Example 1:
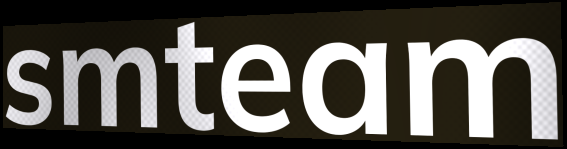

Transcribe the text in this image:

smteam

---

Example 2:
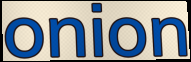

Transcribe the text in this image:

onion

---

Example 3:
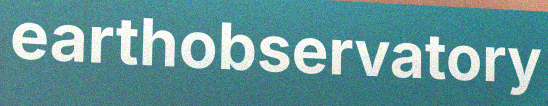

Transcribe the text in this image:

earthobservatory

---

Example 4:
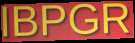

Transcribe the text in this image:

IBPGR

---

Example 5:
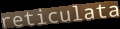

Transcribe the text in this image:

reticulata